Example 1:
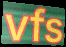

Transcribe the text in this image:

vfs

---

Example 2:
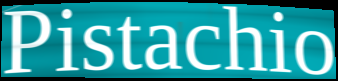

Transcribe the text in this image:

Pistachio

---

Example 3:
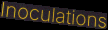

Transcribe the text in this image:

Inoculations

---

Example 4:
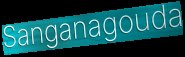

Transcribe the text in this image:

Sanganagouda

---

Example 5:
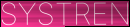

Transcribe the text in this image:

SYSTREN